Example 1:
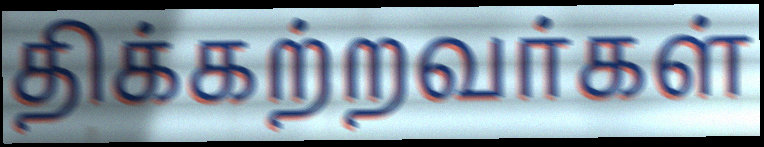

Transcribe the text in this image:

திக்கற்றவர்கள்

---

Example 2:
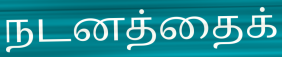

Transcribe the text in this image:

நடனத்தைக்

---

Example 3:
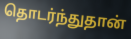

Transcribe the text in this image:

தொடர்ந்துதான்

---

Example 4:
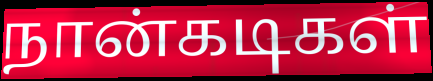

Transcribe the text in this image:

நான்கடிகள்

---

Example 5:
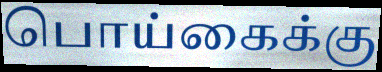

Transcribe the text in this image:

பொய்கைக்கு